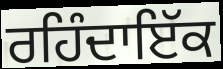
ਰਹਿੰਦਾਇੱਕ